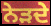
ਨੇੜਦੇ